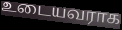
உடையவராக